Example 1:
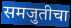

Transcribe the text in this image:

समजुतीचा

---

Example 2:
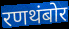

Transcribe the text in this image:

रणथंबोर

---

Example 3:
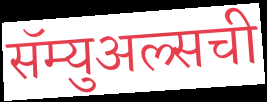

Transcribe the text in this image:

सॅम्युअल्सची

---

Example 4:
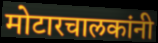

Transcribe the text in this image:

मोटारचालकांनी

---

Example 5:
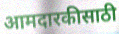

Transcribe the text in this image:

आमदारकीसाठी